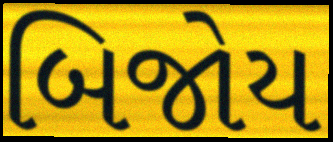
બિજોય